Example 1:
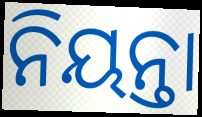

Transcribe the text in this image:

ନିୟନ୍ତା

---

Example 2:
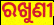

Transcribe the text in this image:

ରଖୁଣୀ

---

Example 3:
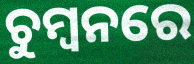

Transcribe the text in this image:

ଚୁମ୍ୱନରେ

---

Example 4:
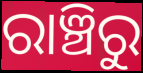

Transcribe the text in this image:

ରାଞ୍ଚିରୁ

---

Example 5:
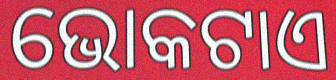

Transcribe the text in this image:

ଭୋକଟାଏ